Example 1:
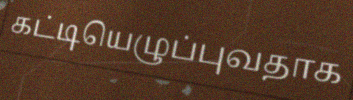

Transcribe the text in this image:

கட்டியெழுப்புவதாக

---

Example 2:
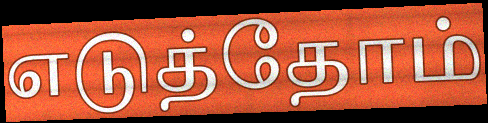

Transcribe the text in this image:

எடுத்தோம்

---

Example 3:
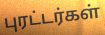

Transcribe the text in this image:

புரட்டர்கள்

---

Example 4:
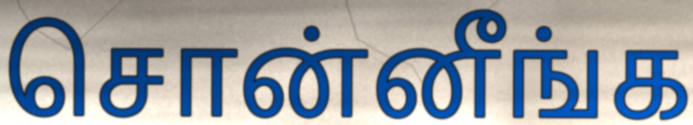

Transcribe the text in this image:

சொன்னீங்க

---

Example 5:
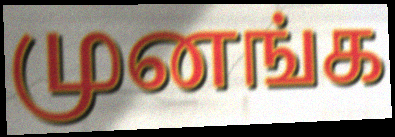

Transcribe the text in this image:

முனங்க